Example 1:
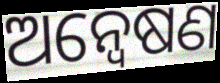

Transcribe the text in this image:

ଅନ୍ବେଷଣ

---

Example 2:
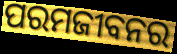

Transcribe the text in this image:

ପରମଜୀବନର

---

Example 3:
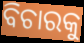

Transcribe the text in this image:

ବିଚାରକୁ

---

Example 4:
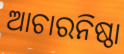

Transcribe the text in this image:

ଆଚାରନିଷ୍ଠା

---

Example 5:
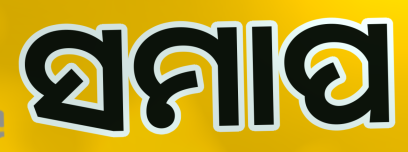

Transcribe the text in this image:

ସମାପ